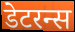
डेटरन्स